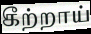
கீற்றாய்